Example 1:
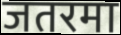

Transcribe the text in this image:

जतरमा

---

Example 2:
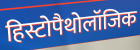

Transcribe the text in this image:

हिस्टोपैथोलॉजिक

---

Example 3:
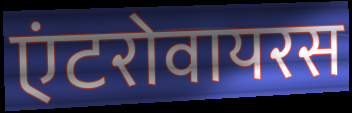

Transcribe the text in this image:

एंटरोवायरस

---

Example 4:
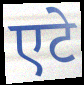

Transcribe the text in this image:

एटे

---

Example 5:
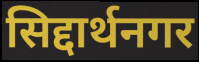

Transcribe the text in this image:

सिद्दार्थनगर